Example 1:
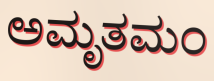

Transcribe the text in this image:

ಅಮೃತಮಂ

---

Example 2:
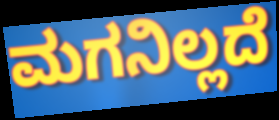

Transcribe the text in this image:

ಮಗನಿಲ್ಲದೆ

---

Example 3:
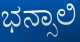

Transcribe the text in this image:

ಭನ್ಸಾಲಿ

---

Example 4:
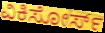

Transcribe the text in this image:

ವಿಕಿಸೋರ್ಸ್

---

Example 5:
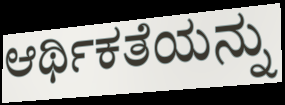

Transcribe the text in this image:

ಆರ್ಥಿಕತೆಯನ್ನು